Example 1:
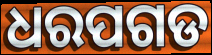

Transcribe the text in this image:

ଧରପଗଡ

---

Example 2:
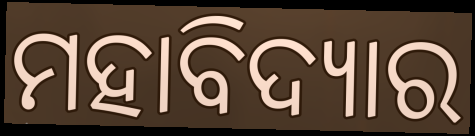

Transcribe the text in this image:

ମହାବିଦ୍ୟାର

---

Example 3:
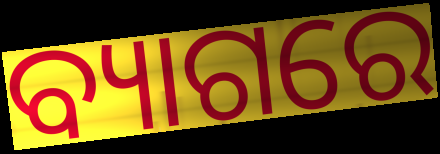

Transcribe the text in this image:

ବ୍ୟାଗରେ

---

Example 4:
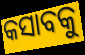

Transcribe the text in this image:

କସାବକୁ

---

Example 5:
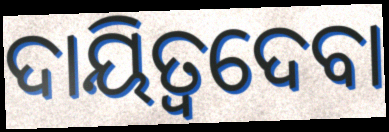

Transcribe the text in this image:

ଦାୟିତ୍ୱଦେବା